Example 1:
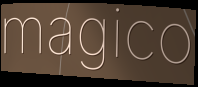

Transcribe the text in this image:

magico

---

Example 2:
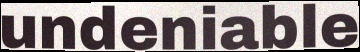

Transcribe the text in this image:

undeniable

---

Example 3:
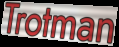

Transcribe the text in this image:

Trotman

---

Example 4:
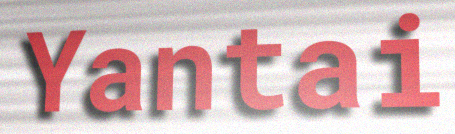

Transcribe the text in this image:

Yantai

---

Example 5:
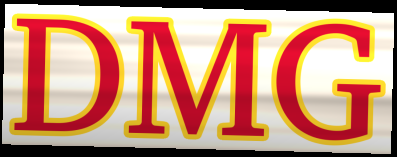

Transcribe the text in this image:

DMG